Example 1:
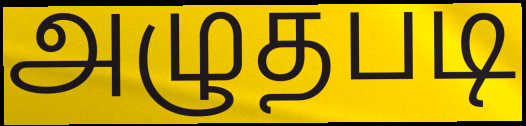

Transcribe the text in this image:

அழுதபடி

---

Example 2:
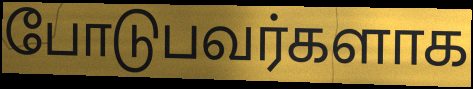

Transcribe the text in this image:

போடுபவர்களாக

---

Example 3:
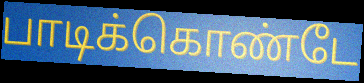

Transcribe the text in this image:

பாடிக்கொண்டே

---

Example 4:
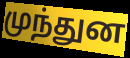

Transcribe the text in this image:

முந்துன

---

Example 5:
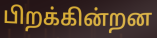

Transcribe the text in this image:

பிறக்கின்றன